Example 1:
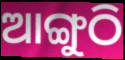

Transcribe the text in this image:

ଆଙ୍ଗୁଠି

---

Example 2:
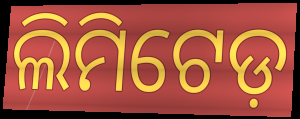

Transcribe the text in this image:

ଲିମିଟେଡ଼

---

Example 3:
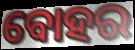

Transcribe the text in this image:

ବୋହର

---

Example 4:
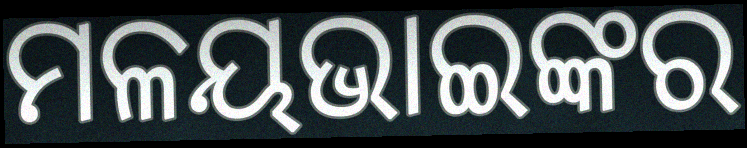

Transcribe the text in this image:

ମଳୟଭାଇଙ୍କର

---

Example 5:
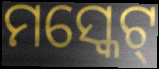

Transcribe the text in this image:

ମସ୍କେଟ୍